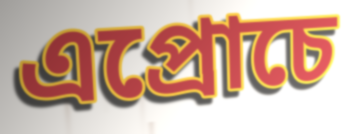
এপ্রোচে